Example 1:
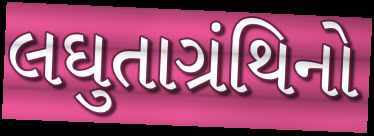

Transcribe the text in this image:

લઘુતાગ્રંથિનો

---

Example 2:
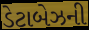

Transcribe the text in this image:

ડેટાબેઝની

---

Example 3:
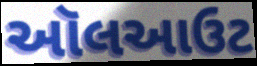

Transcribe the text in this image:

ઑલઆઉટ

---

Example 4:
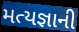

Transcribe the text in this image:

મત્યજ્ઞાની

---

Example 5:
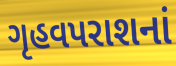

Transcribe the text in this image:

ગૃહવપરાશનાં